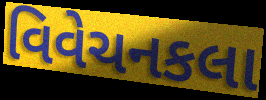
વિવેચનકલા